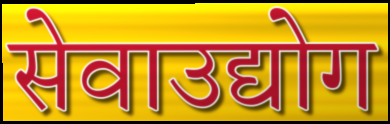
सेवाउद्योग